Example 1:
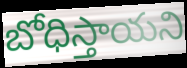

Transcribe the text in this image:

బోధిస్తాయని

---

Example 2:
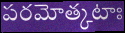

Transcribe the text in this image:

పరమోత్కటాః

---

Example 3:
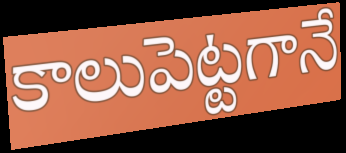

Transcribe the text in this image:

కాలుపెట్టగానే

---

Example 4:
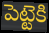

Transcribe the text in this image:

పెట్టెకి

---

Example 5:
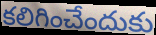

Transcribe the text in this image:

కలిగించేందుకు